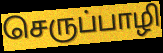
செருப்பாழி